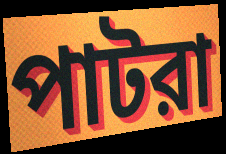
পাটরা